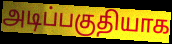
அடிப்பகுதியாக